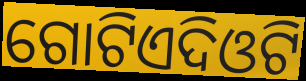
ଗୋଟିଏଦିଓଟି